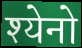
श्येनो